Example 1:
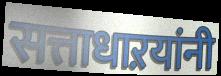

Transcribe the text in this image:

सत्ताधाऱयांनी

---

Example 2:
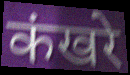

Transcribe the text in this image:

कंखरे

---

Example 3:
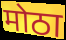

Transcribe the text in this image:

मोठा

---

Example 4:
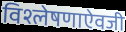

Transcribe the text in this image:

विश्लेषणाऐवजी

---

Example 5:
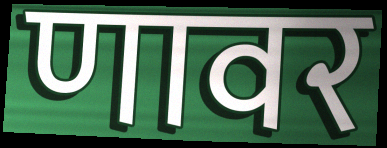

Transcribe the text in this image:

णावर